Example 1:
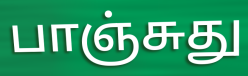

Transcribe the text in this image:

பாஞ்சுது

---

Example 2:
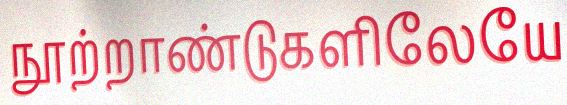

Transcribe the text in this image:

நூற்றாண்டுகளிலேயே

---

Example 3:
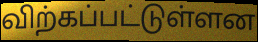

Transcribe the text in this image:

விற்கப்பட்டுள்ளன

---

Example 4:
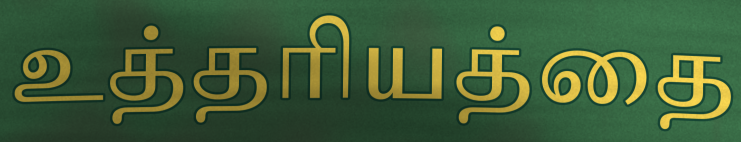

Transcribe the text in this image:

உத்தரியத்தை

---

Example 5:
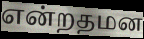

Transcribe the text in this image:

என்றதமன